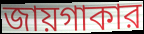
জায়গাকার